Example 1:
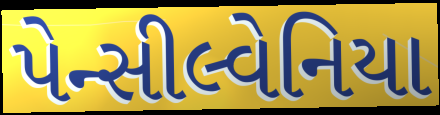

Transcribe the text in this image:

પેન્સીલ્વેનિયા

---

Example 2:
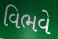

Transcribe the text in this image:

વિભવે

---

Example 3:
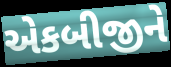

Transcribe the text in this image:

એકબીજીને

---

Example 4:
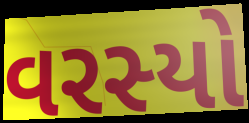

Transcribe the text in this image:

વરસ્યો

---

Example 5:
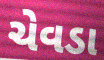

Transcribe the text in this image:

ચેવડા